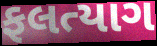
ફલત્યાગ